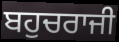
ਬਹੁਚਰਾਜੀ